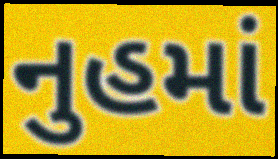
નુહમાં